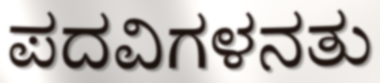
ಪದವಿಗಳನತು